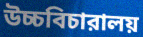
উচ্চবিচারালয়